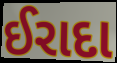
ઈરાદા